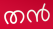
തൻ